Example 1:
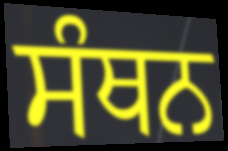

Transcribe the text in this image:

ਸੰਥਨ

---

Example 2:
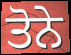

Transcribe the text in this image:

ਤੋਨੇ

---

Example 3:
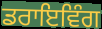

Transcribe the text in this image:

ਡਰਾਇਵਿੰਗ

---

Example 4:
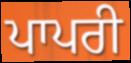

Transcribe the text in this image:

ਪਾਪਰੀ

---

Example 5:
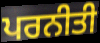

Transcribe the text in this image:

ਪਰਨੀਤੀ